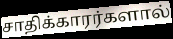
சாதிக்காரர்களால்